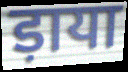
ड़ाया